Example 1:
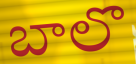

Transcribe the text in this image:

బాలొ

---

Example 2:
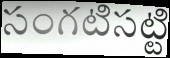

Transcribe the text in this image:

సంగటిసట్టి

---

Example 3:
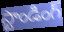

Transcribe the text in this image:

స్టాండింగ్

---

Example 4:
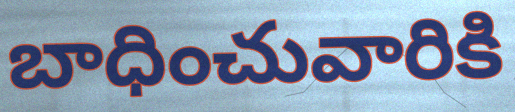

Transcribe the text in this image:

బాధించువారికి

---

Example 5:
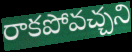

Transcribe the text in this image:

రాకపోవచ్చని